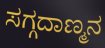
ಸಗ್ಗದಾಣ್ಮನ